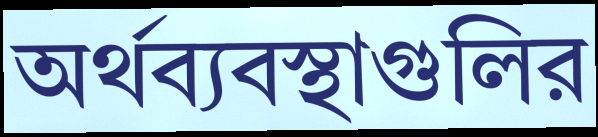
অর্থব্যবস্থাগুলির